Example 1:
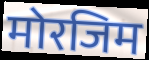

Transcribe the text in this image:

मोरजिम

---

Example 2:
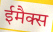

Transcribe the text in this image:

ईमैक्स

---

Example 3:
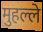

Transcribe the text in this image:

मुहल्ले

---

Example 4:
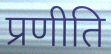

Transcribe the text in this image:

प्रणीति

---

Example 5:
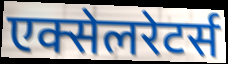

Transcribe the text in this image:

एक्सेलरेटर्स